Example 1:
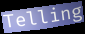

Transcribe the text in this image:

Telling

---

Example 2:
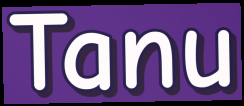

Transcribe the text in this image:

Tanu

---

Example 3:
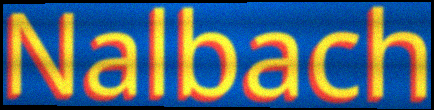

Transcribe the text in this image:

Nalbach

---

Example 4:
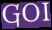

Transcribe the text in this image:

GOI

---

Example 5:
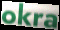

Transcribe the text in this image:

okra